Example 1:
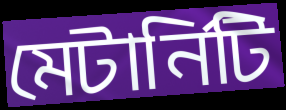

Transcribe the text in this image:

মেটার্নিটি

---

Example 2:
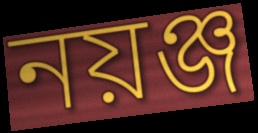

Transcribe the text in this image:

নয়ঞ্জ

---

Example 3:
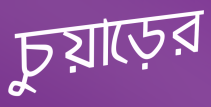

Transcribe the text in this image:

চুয়াড়ের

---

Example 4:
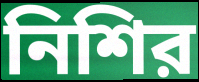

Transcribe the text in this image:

নিশির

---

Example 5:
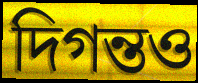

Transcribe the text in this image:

দিগন্তও